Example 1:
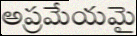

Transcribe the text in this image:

అప్రమేయమై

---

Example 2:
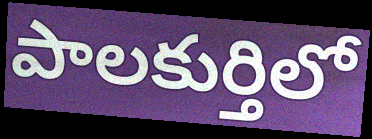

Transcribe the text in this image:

పాలకుర్తిలో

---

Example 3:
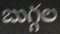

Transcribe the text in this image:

బుగ్గల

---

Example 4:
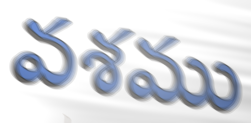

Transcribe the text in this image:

వశము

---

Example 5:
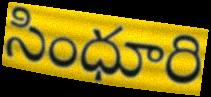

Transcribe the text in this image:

సింధూరి